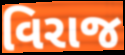
વિરાજ